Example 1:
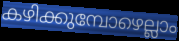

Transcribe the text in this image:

കഴിക്കുമ്പോഴെല്ലാം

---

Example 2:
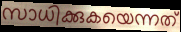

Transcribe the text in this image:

സാധിക്കുകയെന്നത്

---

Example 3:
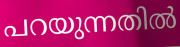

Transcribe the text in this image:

പറയുന്നതിൽ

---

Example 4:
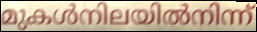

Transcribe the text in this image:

മുകൾനിലയിൽനിന്ന്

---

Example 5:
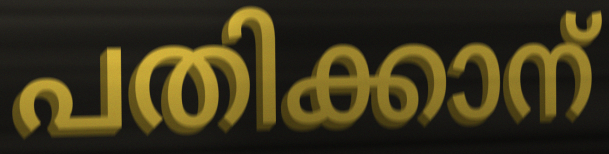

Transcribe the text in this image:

പതിക്കാന്